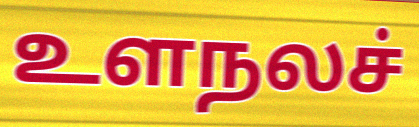
உளநலச்